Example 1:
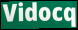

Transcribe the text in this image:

Vidocq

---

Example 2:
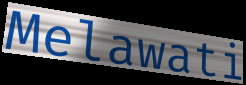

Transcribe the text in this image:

Melawati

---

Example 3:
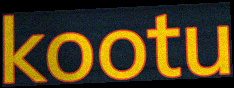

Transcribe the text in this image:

kootu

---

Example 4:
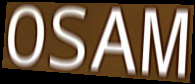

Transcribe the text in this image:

OSAM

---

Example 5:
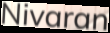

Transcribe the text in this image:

Nivaran